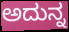
ಅದುನ್ನ